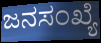
ಜನಸಂಖ್ಯೆ